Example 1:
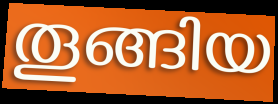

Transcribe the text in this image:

തൂങ്ങിയ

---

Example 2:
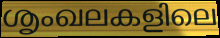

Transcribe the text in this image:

ശൃംഖലകളിലെ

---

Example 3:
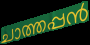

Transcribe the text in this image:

ചാത്തപ്പൻ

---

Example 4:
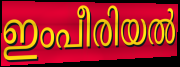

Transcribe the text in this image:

ഇംപീരിയൽ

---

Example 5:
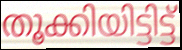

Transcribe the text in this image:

തൂക്കിയിട്ടിട്ട്